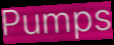
Pumps